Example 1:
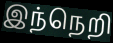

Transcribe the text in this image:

இந்நெறி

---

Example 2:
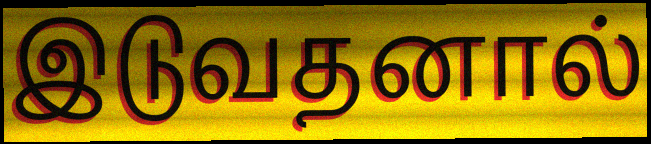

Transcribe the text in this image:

இடுவதனால்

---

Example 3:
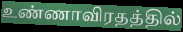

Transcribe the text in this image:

உண்ணாவிரதத்தில்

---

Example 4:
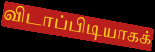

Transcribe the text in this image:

விடாப்பிடியாகக்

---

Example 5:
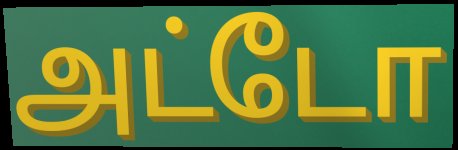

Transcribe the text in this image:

அட்டோ